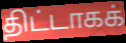
திட்டாகக்